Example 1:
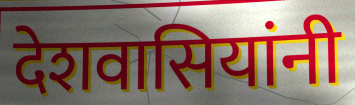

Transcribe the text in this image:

देशवासियांनी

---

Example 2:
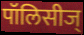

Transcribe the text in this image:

पॉलिसीज्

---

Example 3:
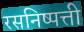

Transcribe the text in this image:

रसनिष्पत्ती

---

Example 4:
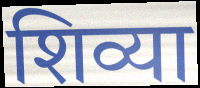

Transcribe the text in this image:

शिव्या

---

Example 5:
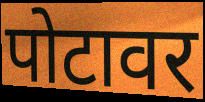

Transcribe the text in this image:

पोटावर